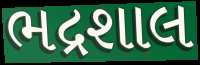
ભદ્રશાલ